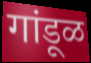
गांडूळ